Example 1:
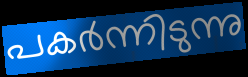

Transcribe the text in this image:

പകർന്നിടുന്നു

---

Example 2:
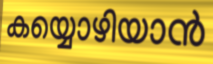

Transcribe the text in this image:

കയ്യൊഴിയാൻ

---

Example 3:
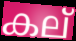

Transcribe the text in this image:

കല്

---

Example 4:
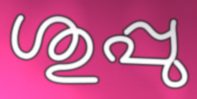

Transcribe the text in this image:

ശുപ്പു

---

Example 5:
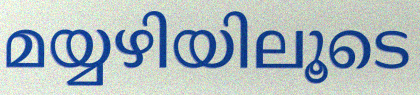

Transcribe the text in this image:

മയ്യഴിയിലൂടെ